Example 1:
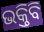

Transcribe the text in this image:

ଭକ୍ତିବି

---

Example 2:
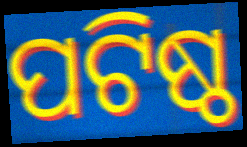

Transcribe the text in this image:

ପଟିଷ୍ଠ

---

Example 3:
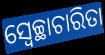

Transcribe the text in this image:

ସ୍ୱେଚ୍ଛାଚାରିତା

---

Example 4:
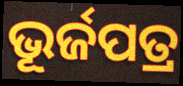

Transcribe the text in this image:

ଭୂର୍ଜପତ୍ର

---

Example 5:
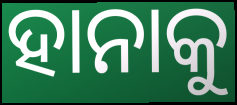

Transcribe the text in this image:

ହାନାକୁ